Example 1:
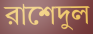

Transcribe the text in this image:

রাশেদুল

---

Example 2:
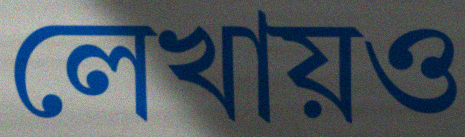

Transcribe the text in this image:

লেখায়ও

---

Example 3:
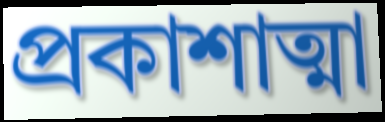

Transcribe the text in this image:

প্রকাশাত্মা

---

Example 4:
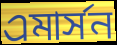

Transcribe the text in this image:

এমার্সন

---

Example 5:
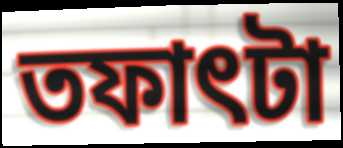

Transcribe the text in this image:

তফাৎটা